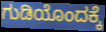
ಗುಡಿಯೊಂದಕ್ಕೆ